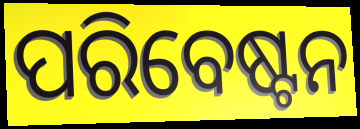
ପରିବେଷ୍ଟନ